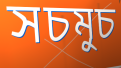
সচমুচ